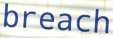
breach